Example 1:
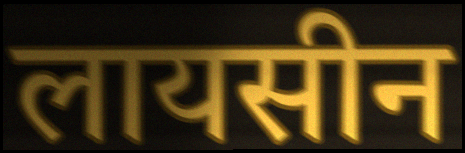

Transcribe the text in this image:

लायसीन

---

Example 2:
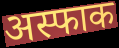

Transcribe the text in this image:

अस्फाक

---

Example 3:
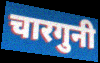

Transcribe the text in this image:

चारगुनी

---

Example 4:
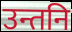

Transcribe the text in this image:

उन्तनि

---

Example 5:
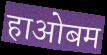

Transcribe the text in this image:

हाओबम